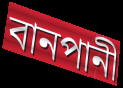
বানপানী